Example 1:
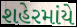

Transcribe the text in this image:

શહેરમાંયે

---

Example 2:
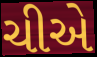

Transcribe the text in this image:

ચીએ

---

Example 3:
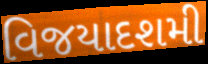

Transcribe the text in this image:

વિજયાદશમી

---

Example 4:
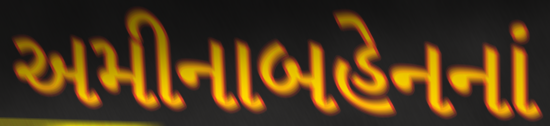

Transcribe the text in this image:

અમીનાબહેનનાં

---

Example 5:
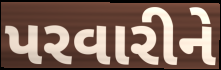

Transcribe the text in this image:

પરવારીને